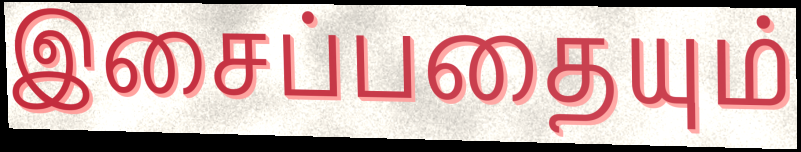
இசைப்பதையும்